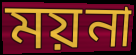
ময়না